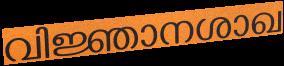
വിജ്ഞാനശാഖ